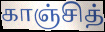
காஞ்சித்